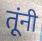
तूंनी